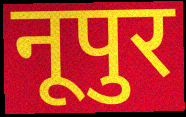
नूपुर